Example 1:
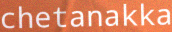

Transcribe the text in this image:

chetanakka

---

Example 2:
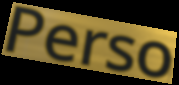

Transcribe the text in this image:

Perso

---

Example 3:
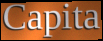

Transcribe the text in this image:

Capita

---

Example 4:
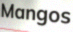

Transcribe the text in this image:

Mangos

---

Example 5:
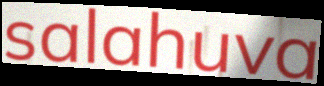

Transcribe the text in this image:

salahuva